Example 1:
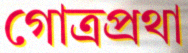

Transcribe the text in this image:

গোত্রপ্রথা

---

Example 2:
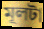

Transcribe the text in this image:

মূলটা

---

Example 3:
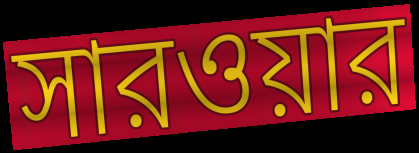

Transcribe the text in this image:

সারওয়ার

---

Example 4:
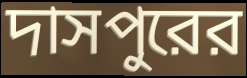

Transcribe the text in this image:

দাসপুরের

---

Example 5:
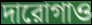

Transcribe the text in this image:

দারোগাও